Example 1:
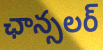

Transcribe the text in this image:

ఛాన్సలర్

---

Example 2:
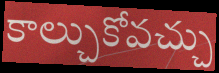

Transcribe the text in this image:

కాల్చుకోవచ్చు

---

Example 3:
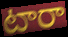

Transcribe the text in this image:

టారా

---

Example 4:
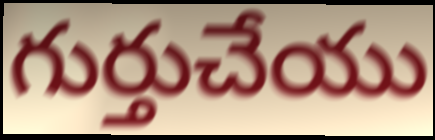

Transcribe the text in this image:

గుర్తుచేయు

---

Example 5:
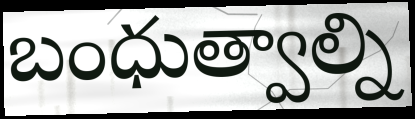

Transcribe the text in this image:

బంధుత్వాల్ని